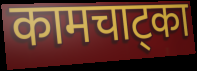
कामचाट्का